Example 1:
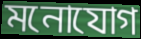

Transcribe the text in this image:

মনোযোগ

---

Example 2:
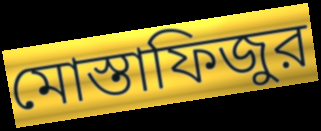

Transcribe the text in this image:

মোস্তাফিজুর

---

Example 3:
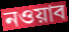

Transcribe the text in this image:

নওয়াব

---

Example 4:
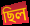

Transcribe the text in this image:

ছিল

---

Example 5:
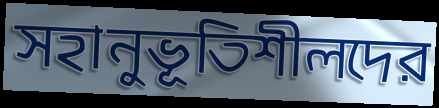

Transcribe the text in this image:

সহানুভূতিশীলদের